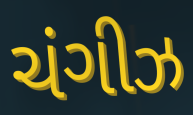
ચંગીઝ